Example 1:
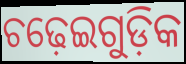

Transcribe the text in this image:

ଚଢ଼େଇଗୁଡ଼ିକ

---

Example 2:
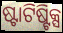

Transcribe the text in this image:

ଷ୍ଟାଟିଷ୍ଟିକ୍ସ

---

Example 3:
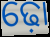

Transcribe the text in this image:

ଢ଼ୋ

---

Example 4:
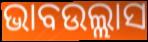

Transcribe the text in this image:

ଭାବଉଲ୍ଲାସ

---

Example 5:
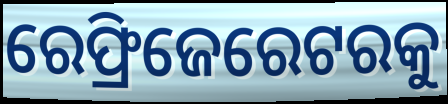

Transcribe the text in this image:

ରେଫ୍ରିଜେରେଟରକୁ